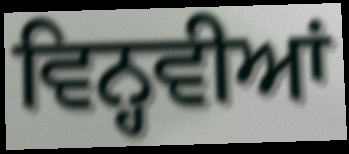
ਵਿਨ੍ਹਵੀਆਂ